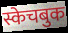
स्केचबुक